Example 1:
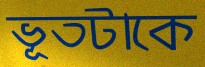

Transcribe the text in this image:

ভূতটাকে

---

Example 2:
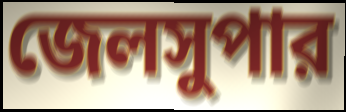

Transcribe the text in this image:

জেলসুপার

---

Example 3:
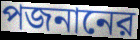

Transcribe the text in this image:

পজনানের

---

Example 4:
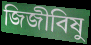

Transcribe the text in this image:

জিজীবিষু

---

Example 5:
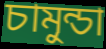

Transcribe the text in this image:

চামুন্ডা